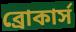
ব্রোকার্স